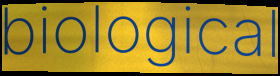
biological